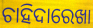
ଚାହିଦାରେଖା